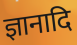
ज्ञानादि